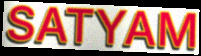
SATYAM